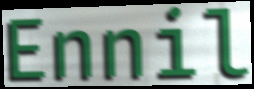
Ennil